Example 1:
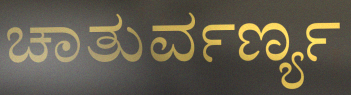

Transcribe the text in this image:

ಚಾತುರ್ವರ್ಣ್ಯ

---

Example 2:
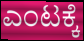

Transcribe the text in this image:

ಎಂಟಕ್ಕೆ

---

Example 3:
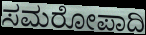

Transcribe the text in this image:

ಸಮರೋಪಾದಿ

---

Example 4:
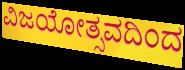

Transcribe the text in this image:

ವಿಜಯೋತ್ಸವದಿಂದ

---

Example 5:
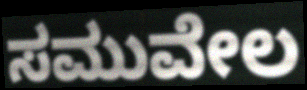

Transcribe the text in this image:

ಸಮುವೇಲ